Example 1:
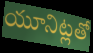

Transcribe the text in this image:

యూనిట్లతో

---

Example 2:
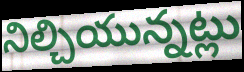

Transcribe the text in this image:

నిల్చియున్నట్లు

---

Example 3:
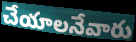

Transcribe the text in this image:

చేయాలనేవారు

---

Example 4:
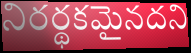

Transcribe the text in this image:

నిరర్థకమైనదని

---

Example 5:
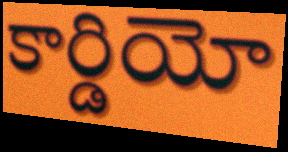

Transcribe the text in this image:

కార్డియో